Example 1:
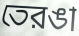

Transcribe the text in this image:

তেরঙা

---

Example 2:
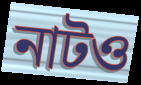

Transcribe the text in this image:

নাটও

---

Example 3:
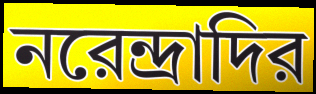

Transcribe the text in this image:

নরেন্দ্রাদির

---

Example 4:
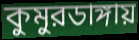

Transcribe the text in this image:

কুমুরডাঙ্গায়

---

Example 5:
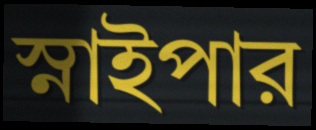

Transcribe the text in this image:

স্নাইপার